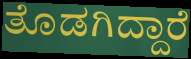
ತೊಡಗಿದ್ದಾರೆ